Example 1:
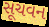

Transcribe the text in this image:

સૂચવન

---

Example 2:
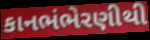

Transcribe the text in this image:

કાનભંભેરણીથી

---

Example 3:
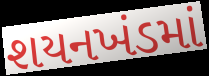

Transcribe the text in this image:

શયનખંડમાં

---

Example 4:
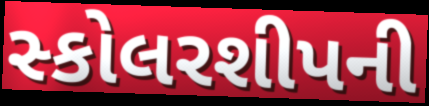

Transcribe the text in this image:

સ્કોલરશીપની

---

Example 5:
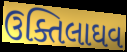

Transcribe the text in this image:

ઉક્તિલાઘવ